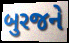
બુરજને